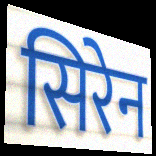
सिरेन